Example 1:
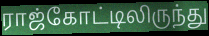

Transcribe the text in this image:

ராஜ்கோட்டிலிருந்து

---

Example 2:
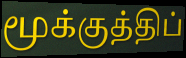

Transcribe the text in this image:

மூக்குத்திப்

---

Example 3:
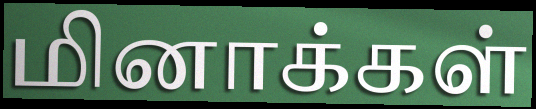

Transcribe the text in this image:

மினாக்கள்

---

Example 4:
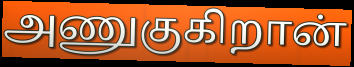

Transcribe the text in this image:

அணுகுகிறான்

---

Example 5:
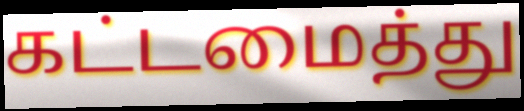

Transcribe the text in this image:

கட்டமைத்து